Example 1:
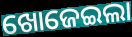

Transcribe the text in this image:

ଖୋଜେଇଲା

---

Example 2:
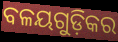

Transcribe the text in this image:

ବଳୟଗୁଡ଼ିକର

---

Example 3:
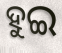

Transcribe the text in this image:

ହୁଇ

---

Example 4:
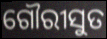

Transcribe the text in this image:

ଗୌରୀସୁତ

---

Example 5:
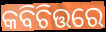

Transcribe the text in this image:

କବିଚିତ୍ତରେ